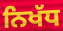
ਨਿਖੱਧ